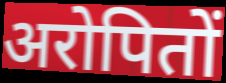
अरोपितों